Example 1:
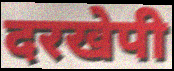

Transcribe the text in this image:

दरखेपी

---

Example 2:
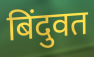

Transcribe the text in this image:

बिंदुवत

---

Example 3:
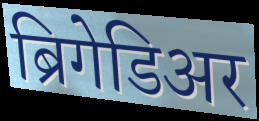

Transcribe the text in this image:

ब्रिगेडिअर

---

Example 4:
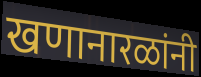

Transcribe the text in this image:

खणानारळांनी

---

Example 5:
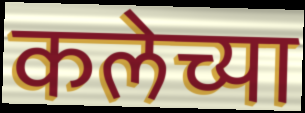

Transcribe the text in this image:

कलेच्या